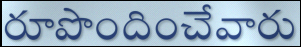
రూపొందించేవారు